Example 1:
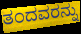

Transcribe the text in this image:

ತಂದವರನ್ನು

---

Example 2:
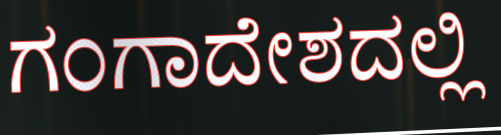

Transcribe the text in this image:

ಗಂಗಾದೇಶದಲ್ಲಿ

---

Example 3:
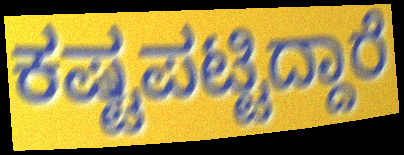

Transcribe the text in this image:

ಕಷ್ಟಪಟ್ಟಿದ್ದಾರೆ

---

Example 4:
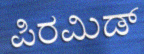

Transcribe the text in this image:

ಪಿರಮಿಡ್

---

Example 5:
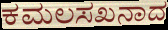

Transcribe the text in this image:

ಕಮಲಸಖನಾದ